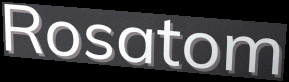
Rosatom